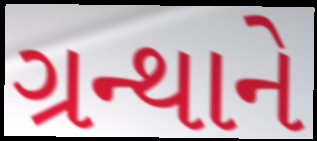
ગ્રન્થાને